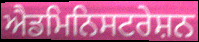
ਐਡਮਿਨਿਸਟਰੇਸ਼ਨ